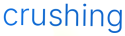
crushing